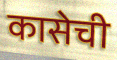
कासेची